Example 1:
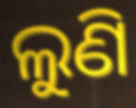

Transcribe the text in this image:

ଲୁଣି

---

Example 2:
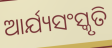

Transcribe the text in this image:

ଆର୍ଯ୍ୟସଂସ୍କୃତି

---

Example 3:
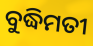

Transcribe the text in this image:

ବୁଦ୍ଧିମତୀ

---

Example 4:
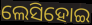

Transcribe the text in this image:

ଲେସିହୋଇ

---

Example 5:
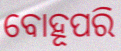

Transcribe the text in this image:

ବୋହୂପରି